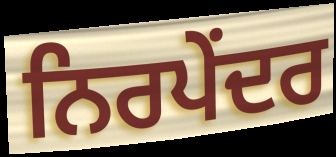
ਨਿਰਪੇਂਦਰ